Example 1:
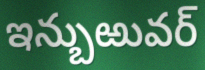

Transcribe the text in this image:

ఇన్బుఱువర్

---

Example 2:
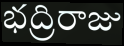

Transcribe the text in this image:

భద్రిరాజు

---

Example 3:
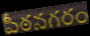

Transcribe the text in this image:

పీఠనగరం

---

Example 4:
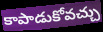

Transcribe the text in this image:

కాపాడుకోవచ్చు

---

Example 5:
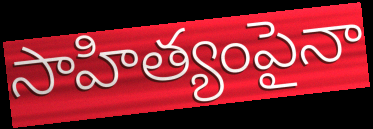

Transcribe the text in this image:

సాహిత్యంపైనా